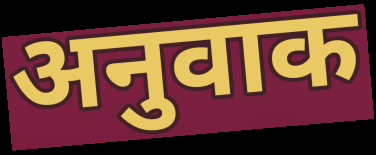
अनुवाक